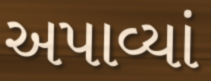
અપાવ્યાં